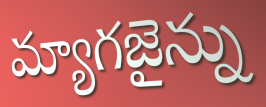
మ్యాగజైన్ను